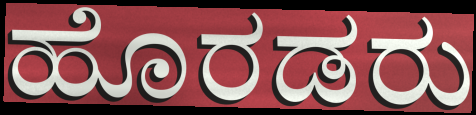
ಹೊರಡರು